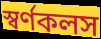
স্বর্ণকলস